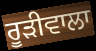
ਰੂਡ਼ੀਵਾਲਾ